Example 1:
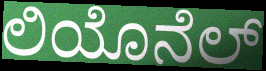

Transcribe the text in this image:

ಲಿಯೊನೆಲ್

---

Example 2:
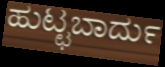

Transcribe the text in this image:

ಹುಟ್ಟಬಾರ್ದು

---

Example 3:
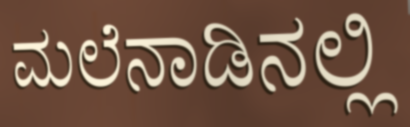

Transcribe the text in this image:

ಮಲೆನಾಡಿನಲ್ಲಿ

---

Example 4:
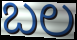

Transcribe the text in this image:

ಬಲ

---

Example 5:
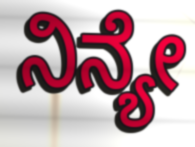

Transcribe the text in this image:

ನಿನ್ಯೇ